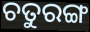
ଚତୁରଙ୍ଗ